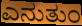
ಎನುತುಂ